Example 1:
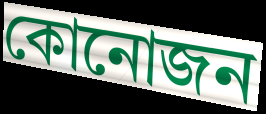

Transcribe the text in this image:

কোনোজন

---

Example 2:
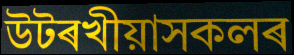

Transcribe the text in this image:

উটৰখীয়াসকলৰ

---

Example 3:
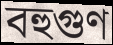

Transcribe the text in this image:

বহুগুণ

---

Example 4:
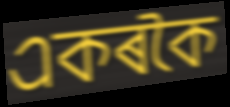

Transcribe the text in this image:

একৰকৈ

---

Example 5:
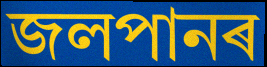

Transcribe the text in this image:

জলপানৰ